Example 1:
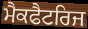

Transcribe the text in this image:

ਮੈਕਫੈਟਰਿਜ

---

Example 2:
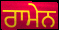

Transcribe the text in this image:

ਰਾਮੇਨ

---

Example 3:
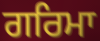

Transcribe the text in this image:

ਗਰਿਮਾ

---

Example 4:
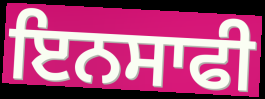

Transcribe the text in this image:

ਇਨਸਾਫੀ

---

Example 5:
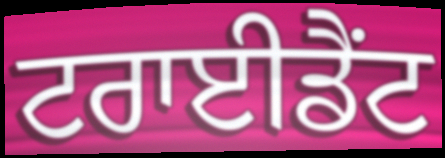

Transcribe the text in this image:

ਟਰਾਈਡੈਂਟ